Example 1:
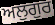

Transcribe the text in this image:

ਅਲੁਗੁਰ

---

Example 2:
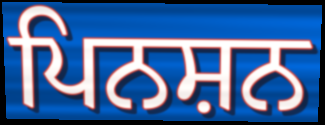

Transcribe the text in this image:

ਪਿਨਸ਼ਨ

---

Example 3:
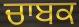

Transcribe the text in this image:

ਚਾਬਕ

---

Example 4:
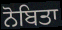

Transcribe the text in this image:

ਨੋਬਿਤਾ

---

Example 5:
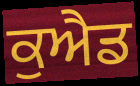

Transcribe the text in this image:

ਕੁਐਡ